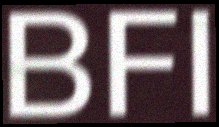
BFI